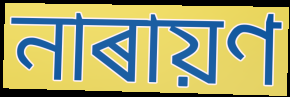
নাৰায়ণ